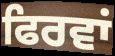
ਫਿਰਵਾਂ